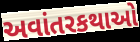
અવાંતરકથાઓ